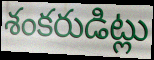
శంకరుడిట్లు